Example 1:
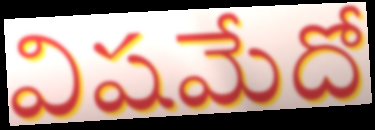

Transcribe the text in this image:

విషమేదో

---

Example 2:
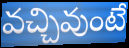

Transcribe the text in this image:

వచ్చివుంటే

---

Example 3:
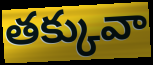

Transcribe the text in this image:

తక్కువా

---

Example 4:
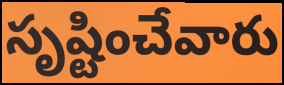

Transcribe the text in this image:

సృష్టించేవారు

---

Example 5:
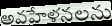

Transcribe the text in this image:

అవహేళనలను